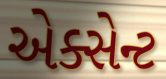
એક્સેન્ટ